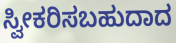
ಸ್ವೀಕರಿಸಬಹುದಾದ